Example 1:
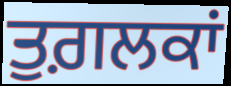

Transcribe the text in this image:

ਤੁਗ਼ਲਕਾਂ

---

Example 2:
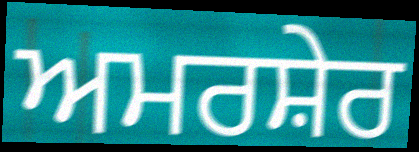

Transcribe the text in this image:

ਅਮਰਸ਼ੇਰ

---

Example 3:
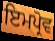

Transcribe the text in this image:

ਇਮਪ੍ਰੋਵ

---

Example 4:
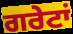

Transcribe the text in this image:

ਗਰੇਟਾਂ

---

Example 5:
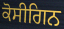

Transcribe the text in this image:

ਕੋਸੀਗਿਨ